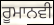
ਰੂਮਾਨਵੀ